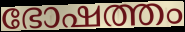
ഭോഷത്തം